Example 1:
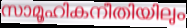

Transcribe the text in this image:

സാമൂഹികനീതിയിലും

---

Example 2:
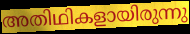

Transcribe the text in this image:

അതിഥികളായിരുന്നു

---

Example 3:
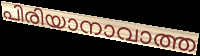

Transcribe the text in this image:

പിരിയാനാവാത്ത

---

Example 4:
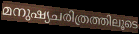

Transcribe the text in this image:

മനുഷ്യചരിത്രത്തിലൂടെ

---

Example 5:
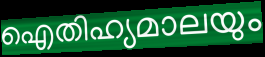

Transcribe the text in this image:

ഐതിഹ്യമാലയും